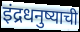
इंद्रधनुष्याची